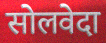
सोलवेदा